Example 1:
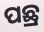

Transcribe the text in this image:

ପଛ୍ର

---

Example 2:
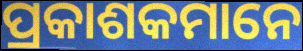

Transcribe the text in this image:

ପ୍ରକାଶକମାନେ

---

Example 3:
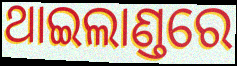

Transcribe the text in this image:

ଥାଇଲାଣ୍ଡରେ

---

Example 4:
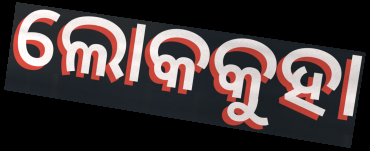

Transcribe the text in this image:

ଲୋକକୁହା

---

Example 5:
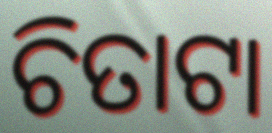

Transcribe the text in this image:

ଚିତାଟା